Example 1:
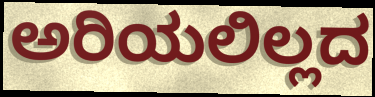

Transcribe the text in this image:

ಅರಿಯಲಿಲ್ಲದ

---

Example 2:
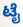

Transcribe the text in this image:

ಟೈ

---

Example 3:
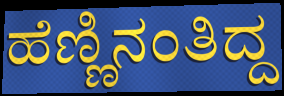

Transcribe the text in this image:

ಹೆಣ್ಣಿನಂತಿದ್ದ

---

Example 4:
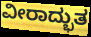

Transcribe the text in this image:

ವೀರಾದ್ಭುತ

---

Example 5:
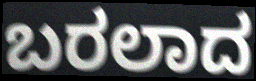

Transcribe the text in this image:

ಬರಲಾದ